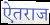
ऐतराज